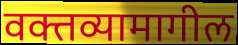
वक्तव्यामागील